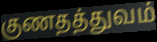
குணதத்துவம்